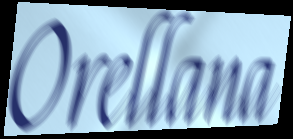
Orellana